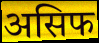
असिफ